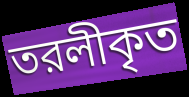
তরলীকৃত